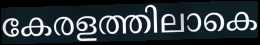
കേരളത്തിലാകെ